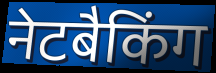
नेटबैकिंग